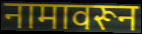
नामावरून